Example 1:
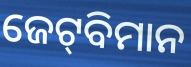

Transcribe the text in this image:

ଜେଟ୍‌ବିମାନ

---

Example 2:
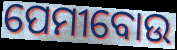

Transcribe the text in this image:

ପେମୀବୋଉ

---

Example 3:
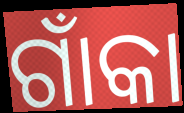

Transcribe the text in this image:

ଗାଁକା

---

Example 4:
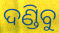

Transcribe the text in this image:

ଦଣ୍ଡିବୁ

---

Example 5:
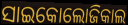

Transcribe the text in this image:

ସାଇକୋଲୋଜିକାଲ